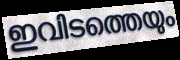
ഇവിടത്തെയും